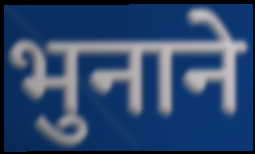
भुनाने